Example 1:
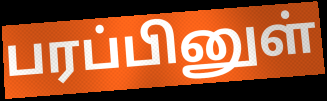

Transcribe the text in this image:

பரப்பினுள்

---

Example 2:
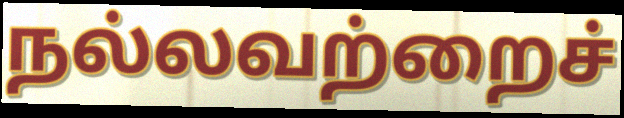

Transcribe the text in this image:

நல்லவற்றைச்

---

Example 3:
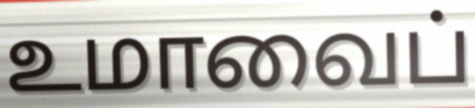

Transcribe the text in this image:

உமாவைப்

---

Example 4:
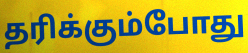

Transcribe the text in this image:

தரிக்கும்போது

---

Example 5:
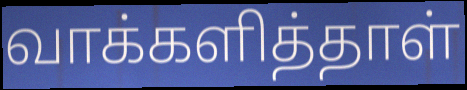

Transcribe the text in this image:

வாக்களித்தாள்